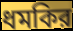
ধমকির